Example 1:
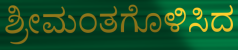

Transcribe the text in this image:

ಶ್ರೀಮಂತಗೊಳಿಸಿದ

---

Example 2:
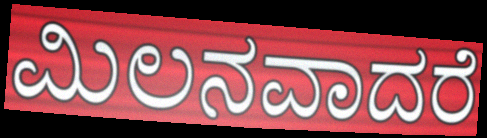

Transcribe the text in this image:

ಮಿಲನವಾದರೆ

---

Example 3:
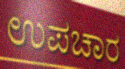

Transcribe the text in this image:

ಉಪಚಾರ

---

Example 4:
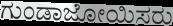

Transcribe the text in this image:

ಗುಂಡಾಜೋಯಿಸರು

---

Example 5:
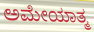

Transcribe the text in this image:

ಅಮೇಯಾತ್ಮ